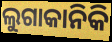
ଲୁଗାକାନିକି